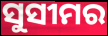
ସୁସୀମର